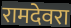
रामदेवरा